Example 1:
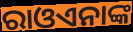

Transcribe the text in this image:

ରାଓଏନାଙ୍କ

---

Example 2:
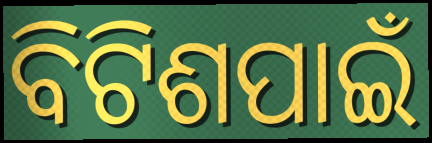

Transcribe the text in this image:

ବିଟିଶପାଇଁ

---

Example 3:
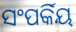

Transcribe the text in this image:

ସଂପର୍କିୟ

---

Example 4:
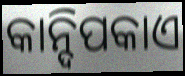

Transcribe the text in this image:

କାନ୍ଦିପକାଏ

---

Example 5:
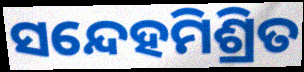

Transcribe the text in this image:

ସନ୍ଦେହମିଶ୍ରିତ